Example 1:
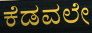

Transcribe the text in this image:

ಕೆಡವಲೇ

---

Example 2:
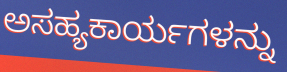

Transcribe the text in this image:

ಅಸಹ್ಯಕಾರ್ಯಗಳನ್ನು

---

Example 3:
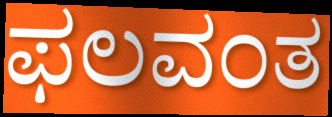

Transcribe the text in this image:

ಫಲವಂತ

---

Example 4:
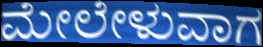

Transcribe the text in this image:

ಮೇಲೇಳುವಾಗ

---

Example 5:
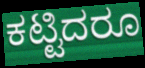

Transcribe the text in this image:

ಕಟ್ಟಿದರೂ